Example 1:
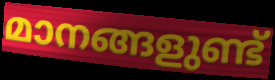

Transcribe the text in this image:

മാനങ്ങളുണ്ട്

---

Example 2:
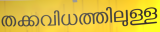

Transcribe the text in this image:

തക്കവിധത്തിലുള്ള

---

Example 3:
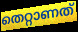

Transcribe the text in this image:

തെറ്റാണത്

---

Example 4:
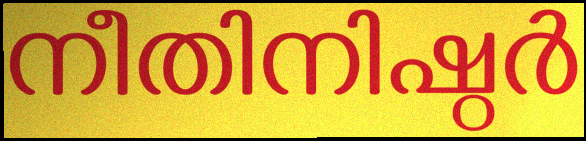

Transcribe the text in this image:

നീതിനിഷ്ഠർ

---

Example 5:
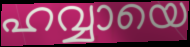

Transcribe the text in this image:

ഹവ്വായെ